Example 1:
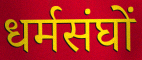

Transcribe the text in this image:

धर्मसंघों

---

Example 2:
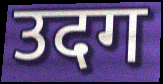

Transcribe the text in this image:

उदग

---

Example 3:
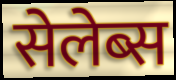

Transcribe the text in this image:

सेलेब्‍स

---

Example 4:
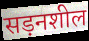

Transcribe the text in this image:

सड़नशील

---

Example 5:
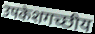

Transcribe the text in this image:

उपकेशगच्छीय